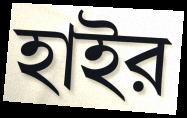
হাইর